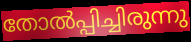
തോൽപ്പിച്ചിരുന്നു